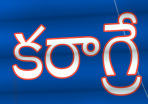
కరాగ్రే